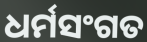
ଧର୍ମସଂଗତ